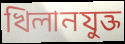
খিলানযুক্ত